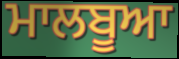
ਮਾਲਬੂਆ